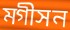
মগীসন